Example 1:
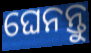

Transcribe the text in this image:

ଘେନନ୍ତୁ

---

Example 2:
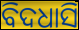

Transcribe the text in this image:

ବିଦଧାସି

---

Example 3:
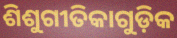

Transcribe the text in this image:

ଶିଶୁଗୀତିକାଗୁଡ଼ିକ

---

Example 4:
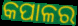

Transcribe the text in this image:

କପାଳର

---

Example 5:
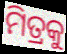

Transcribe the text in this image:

ମିତ୍ରକୁ